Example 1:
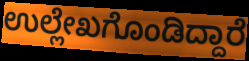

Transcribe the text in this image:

ಉಲ್ಲೇಖಗೊಂಡಿದ್ದಾರೆ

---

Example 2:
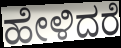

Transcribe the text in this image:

ಹೇಳಿದರೆ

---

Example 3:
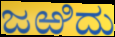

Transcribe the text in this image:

ಜಱಿದು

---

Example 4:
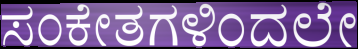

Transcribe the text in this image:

ಸಂಕೇತಗಳಿಂದಲೇ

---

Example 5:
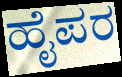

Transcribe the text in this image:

ಹೈಪರ